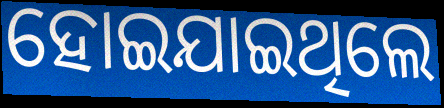
ହୋଇଯାଇଥିଲେ